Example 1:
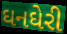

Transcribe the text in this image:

ઘનઘેરી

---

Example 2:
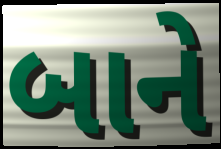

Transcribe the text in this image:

બાને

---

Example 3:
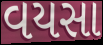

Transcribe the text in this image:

વયસા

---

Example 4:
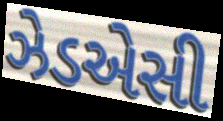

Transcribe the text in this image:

ઝેડએસી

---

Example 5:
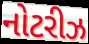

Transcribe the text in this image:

નોટરીઝ